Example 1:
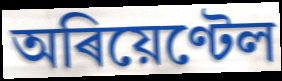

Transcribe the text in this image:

অৰিয়েণ্টেল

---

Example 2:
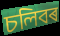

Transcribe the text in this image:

চলিবৰ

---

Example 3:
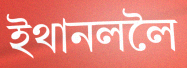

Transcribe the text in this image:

ইথানললৈ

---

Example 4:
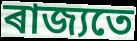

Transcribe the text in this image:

ৰাজ্যতে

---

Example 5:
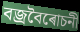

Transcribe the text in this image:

বজ্ৰবৈৰোচনী